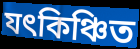
যৎকিঞ্চিত